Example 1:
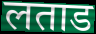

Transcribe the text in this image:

लताड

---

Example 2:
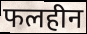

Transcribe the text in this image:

फलहीन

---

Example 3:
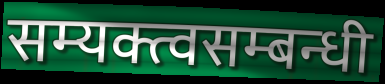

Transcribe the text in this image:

सम्यक्त्वसम्बन्धी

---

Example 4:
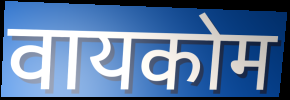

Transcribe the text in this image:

वायकोम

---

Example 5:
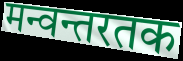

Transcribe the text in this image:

मन्वन्तरतक